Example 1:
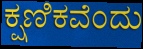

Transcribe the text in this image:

ಕ್ಷಣಿಕವೆಂದು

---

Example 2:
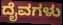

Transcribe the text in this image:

ದೈವಗಳು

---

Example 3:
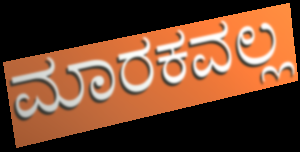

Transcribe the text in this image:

ಮಾರಕವಲ್ಲ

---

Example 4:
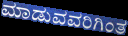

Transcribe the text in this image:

ಮಾಡುವವರಿಗಿಂತ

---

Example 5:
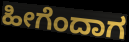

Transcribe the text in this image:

ಹೀಗೆಂದಾಗ